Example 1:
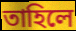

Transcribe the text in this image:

তাহিলে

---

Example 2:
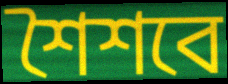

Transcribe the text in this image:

শৈশবে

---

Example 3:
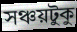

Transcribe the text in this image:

সঞ্চয়টুকু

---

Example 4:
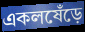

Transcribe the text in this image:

একলষেঁড়ে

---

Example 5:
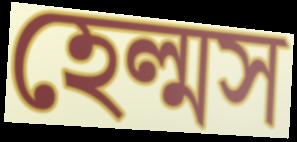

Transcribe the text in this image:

হেল্মস